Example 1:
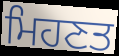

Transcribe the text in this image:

ਮਿਹਣਤ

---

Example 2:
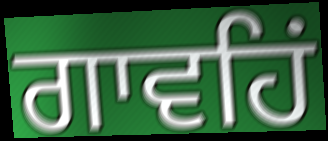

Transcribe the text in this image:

ਗਾਵਹਿਂ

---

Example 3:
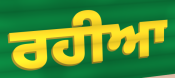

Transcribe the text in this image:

ਰਹੀਆ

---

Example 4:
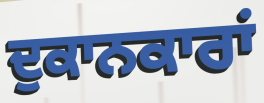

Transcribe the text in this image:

ਦੁਕਾਨਕਾਰਾਂ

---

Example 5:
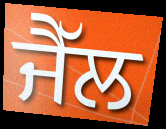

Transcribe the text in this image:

ਜੈੱਲ